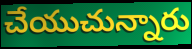
చేయుచున్నారు